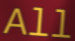
All